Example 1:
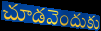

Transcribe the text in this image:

చూడవెందుకు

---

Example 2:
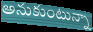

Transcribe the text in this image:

అనుకుంటున్నా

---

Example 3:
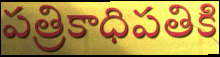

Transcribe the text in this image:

పత్రికాధిపతికి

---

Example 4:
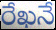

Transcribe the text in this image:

రేఖనే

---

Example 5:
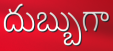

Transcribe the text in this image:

దుబ్బుగా